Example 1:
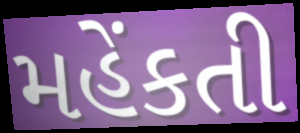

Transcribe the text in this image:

મહેંકતી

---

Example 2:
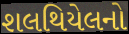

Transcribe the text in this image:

શલથિયેલનો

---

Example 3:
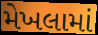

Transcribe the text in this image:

મેખલામાં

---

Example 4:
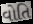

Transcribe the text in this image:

વોતિ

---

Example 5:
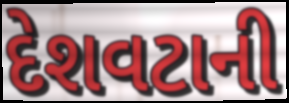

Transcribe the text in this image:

દેશવટાની